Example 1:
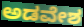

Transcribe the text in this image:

ಅಡವೇಶ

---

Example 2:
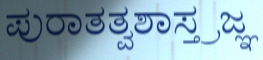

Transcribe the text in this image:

ಪುರಾತತ್ವಶಾಸ್ತ್ರಜ್ಞ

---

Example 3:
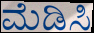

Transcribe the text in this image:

ಮೆಡಿಸಿ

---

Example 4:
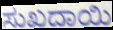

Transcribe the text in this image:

ಸುಖದಾಯಿ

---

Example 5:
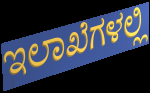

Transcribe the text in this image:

ಇಲಾಖೆಗಳಲ್ಲಿ